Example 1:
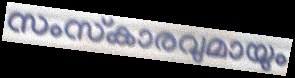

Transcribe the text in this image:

സംസ്‌കാരവുമായും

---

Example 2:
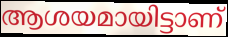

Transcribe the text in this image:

ആശയമായിട്ടാണ്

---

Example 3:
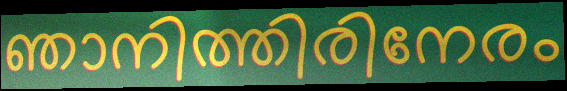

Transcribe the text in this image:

ഞാനിത്തിരിനേരം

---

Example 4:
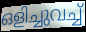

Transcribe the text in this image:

ഒളിച്ചുവച്ച്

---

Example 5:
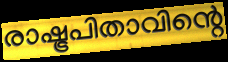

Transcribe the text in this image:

രാഷ്ട്രപിതാവിന്റെ